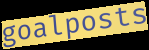
goalposts